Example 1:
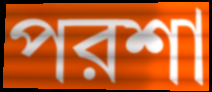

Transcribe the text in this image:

পরশা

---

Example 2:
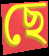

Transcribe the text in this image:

ছে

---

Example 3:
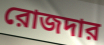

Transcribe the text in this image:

রোজদার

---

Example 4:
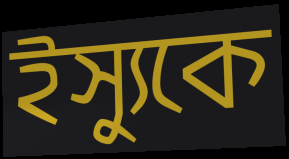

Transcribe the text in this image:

ইস্যুকে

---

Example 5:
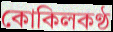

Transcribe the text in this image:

কোকিলকণ্ঠ